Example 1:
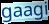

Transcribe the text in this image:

gaagi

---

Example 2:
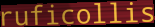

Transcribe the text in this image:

ruficollis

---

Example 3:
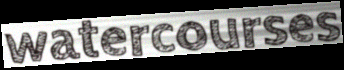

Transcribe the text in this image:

watercourses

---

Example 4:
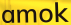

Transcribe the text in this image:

amok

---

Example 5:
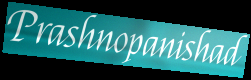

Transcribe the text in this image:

Prashnopanishad